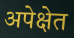
अपेक्षेत